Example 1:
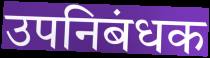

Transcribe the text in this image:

उपनिबंधक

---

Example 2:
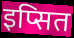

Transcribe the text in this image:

इप्सित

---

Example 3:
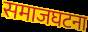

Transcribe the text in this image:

समाजघटना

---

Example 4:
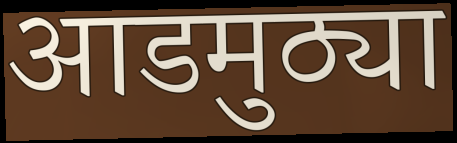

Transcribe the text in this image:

आडमुठ्या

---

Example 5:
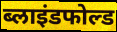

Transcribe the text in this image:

ब्लाइंडफोल्ड